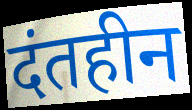
दंतहीन